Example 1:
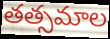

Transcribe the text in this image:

తత్సమాల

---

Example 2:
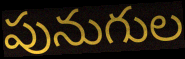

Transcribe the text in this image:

పునుగుల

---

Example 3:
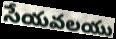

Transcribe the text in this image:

సేయవలయు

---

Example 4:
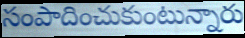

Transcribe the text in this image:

సంపాదించుకుంటున్నారు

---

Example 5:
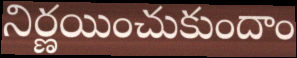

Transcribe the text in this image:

నిర్ణయించుకుందాం